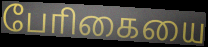
பேரிகையை